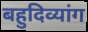
बहुदिव्यांग